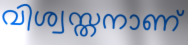
വിശ്വസ്തനാണ്